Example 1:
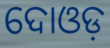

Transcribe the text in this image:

ଦୋଓଡ଼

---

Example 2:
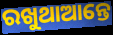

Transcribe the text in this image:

ରଖୁଥାଆନ୍ତେ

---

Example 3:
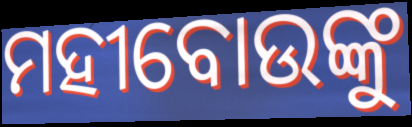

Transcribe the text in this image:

ମହୀବୋଉଙ୍କୁ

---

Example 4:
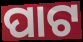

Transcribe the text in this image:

ପାଟ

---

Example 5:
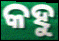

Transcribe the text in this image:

କହୁ